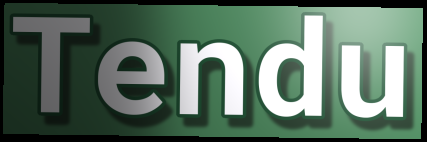
Tendu